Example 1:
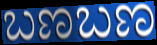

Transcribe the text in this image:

ಬಣಬಣ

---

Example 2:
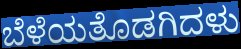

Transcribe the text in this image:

ಬೆಳೆಯತೊಡಗಿದಳು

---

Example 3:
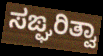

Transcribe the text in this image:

ಸಙ್ಘರಿತ್ವಾ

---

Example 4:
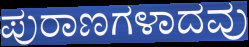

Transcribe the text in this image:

ಪುರಾಣಗಳಾದವು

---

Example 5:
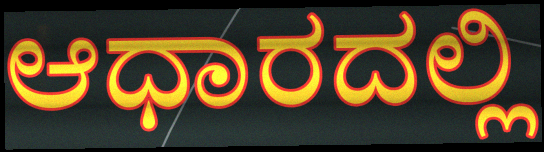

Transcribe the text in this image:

ಆಧಾರದಲ್ಲಿ